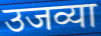
उजव्या